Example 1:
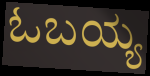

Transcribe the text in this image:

ಓಬಯ್ಯ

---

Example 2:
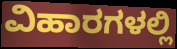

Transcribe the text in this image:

ವಿಹಾರಗಳಲ್ಲಿ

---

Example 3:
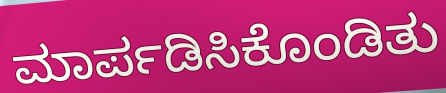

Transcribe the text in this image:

ಮಾರ್ಪಡಿಸಿಕೊಂಡಿತು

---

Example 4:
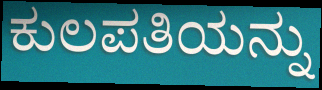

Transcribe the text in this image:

ಕುಲಪತಿಯನ್ನು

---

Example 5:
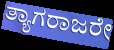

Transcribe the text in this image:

ತ್ಯಾಗರಾಜರೇ